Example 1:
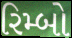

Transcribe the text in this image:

રિમ્બો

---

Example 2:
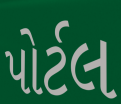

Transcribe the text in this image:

પોર્ટલ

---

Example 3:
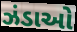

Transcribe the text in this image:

ઝંડાઓ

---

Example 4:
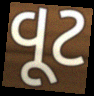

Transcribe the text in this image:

વૂટ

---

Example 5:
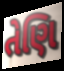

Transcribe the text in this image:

તેણિ